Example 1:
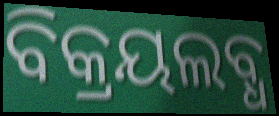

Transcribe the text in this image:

ବିକ୍ରୟଲବ୍ଧ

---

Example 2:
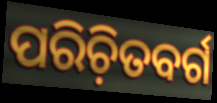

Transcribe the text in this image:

ପରିଚ଼ିତବର୍ଗ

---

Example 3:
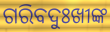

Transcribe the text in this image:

ଗରିବଦୁଃଖୀଙ୍କ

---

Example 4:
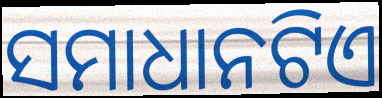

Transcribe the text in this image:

ସମାଧାନଟିଏ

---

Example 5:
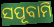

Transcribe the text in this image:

ସପୂବାମି